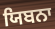
ਯਿਬਨਾ